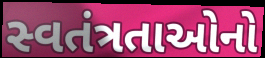
સ્વતંત્રતાઓનો